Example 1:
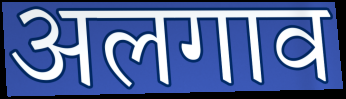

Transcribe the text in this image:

अलगाव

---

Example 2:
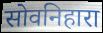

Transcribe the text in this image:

सोवनिहारा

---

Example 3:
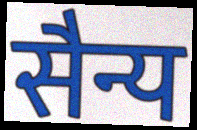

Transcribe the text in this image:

सैन्य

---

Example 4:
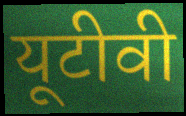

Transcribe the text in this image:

यूटीवी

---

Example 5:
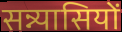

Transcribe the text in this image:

सन्न्यासियों